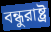
বন্ধুরাষ্ট্র